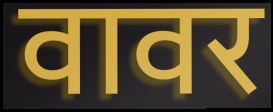
वावर